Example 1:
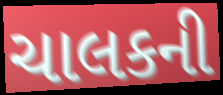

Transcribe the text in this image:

ચાલકની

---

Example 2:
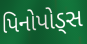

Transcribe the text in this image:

પિનોપોડ્સ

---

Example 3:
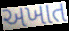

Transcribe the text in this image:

અખાત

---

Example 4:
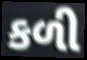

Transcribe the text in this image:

કળી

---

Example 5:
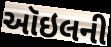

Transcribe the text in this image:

ઑઇલની